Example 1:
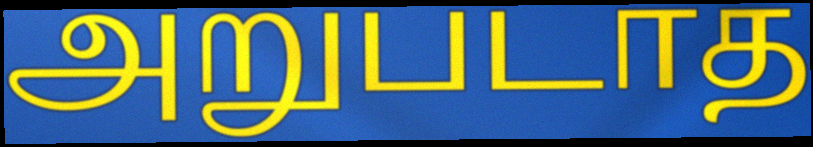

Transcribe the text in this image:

அறுபடாத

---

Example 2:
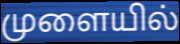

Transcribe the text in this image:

முளையில்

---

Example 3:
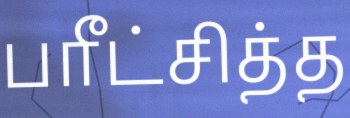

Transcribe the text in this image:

பரீட்சித்த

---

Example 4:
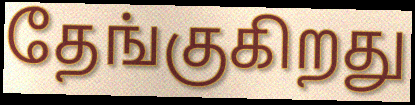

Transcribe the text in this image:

தேங்குகிறது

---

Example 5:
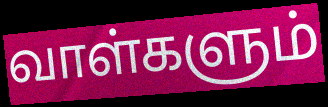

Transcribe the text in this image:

வாள்களும்